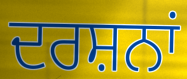
ਦਰਸ਼ਨਾਂ